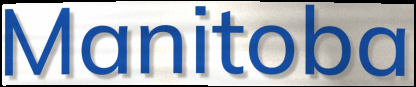
Manitoba